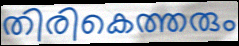
തിരികെത്തരും